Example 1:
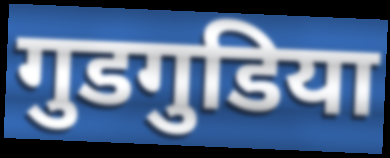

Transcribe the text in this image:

गुडगुडिया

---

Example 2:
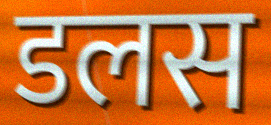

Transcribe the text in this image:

डलस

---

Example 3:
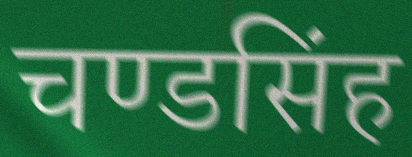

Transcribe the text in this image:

चण्डसिंह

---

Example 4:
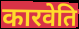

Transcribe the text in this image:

कारवेति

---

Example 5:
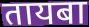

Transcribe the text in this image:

तायबा